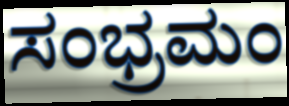
ಸಂಭ್ರಮಂ